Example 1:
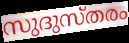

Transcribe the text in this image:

സുദുസ്തരം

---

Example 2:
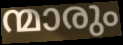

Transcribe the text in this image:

ന്മാരും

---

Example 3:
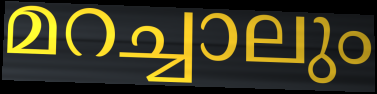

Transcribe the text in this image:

മറച്ചാലും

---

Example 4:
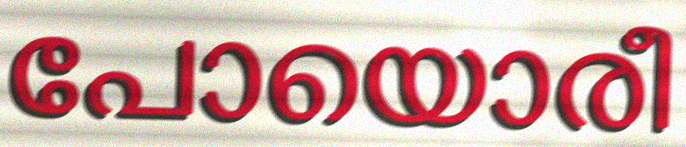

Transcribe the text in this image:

പോയൊരീ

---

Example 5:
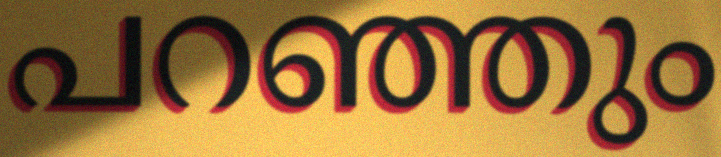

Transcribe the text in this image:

പറഞ്ഞും